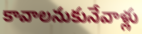
కావాలనుకునేవాళ్లు